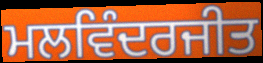
ਮਲਵਿੰਦਰਜੀਤ